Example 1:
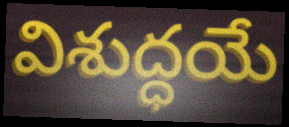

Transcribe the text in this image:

విశుద్ధయే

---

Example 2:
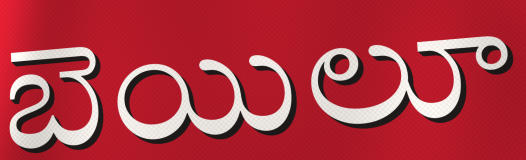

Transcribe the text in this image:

బెయిలూ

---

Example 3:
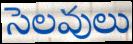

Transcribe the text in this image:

సెలవులు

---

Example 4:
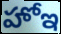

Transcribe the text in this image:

హోఇ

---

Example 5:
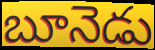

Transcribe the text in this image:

బూనెడు